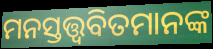
ମନସ୍ତତ୍ତ୍ୱବିତମାନଙ୍କ